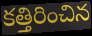
కత్తిరించిన